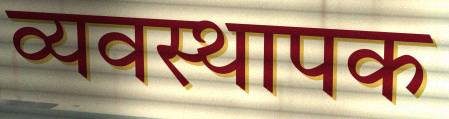
व्यवस्थापक